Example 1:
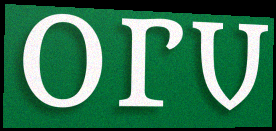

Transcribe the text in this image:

oru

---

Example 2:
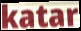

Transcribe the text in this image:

katar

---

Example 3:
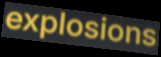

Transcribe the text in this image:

explosions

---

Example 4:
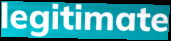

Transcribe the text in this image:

legitimate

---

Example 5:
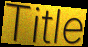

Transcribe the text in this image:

Title